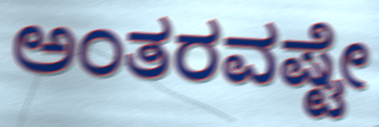
ಅಂತರವಷ್ಟೇ